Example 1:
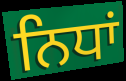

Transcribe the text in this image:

ਨਿਧਾਂ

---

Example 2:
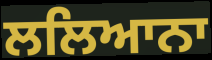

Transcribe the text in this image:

ਲਲਿਆਨਾ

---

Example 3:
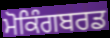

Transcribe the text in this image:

ਮੋਕਿੰਗਬਰਡ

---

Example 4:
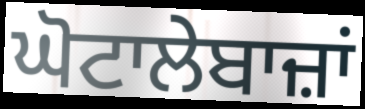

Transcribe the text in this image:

ਘੋਟਾਲੇਬਾਜ਼ਾਂ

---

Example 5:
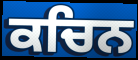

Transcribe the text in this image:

ਕਚਿਨ